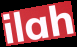
ilah